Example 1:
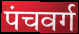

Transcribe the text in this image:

पंचवर्ग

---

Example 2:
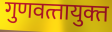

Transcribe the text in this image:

गुणवत्‍तायुक्‍त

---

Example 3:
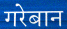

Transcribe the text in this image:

गरेबान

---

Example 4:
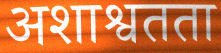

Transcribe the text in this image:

अशाश्वतता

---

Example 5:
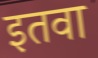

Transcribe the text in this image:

इतवा